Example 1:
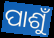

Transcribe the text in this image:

ପାଶୁଁ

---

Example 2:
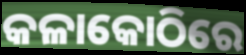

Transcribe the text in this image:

କଳାକୋଠିରେ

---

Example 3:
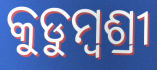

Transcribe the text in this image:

କୁଡୁମ୍ବଶ୍ରୀ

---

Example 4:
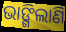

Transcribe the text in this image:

ଭାଙ୍ଗିଲାଣି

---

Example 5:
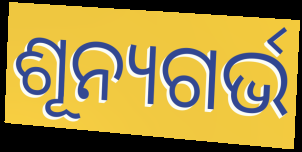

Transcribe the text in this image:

ଶୂନ୍ୟଗର୍ଭ